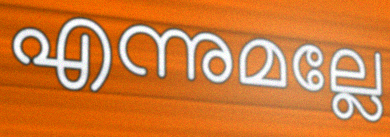
എന്നുമല്ലേ